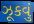
ઝૂકવું